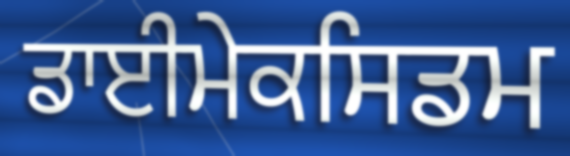
ਡਾਈਮੇਕਸਿਡਮ